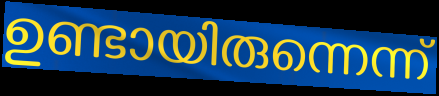
ഉണ്ടായിരുന്നെന്ന്